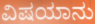
ವಿಷಯಾನು